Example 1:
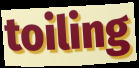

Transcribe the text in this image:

toiling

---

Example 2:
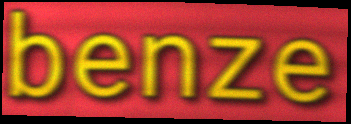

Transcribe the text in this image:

benze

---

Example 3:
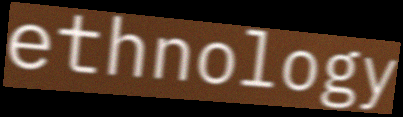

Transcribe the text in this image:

ethnology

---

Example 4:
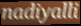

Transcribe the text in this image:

nadiyalli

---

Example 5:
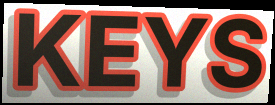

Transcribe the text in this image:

KEYS